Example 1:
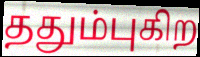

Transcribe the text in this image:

ததும்புகிற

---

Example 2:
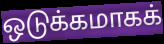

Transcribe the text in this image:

ஒடுக்கமாகக்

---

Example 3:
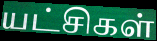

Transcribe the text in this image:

யட்சிகள்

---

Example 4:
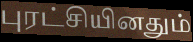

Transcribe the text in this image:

புரட்சியினதும்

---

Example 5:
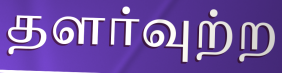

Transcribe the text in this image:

தளர்வுற்ற